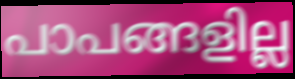
പാപങ്ങളില്ല